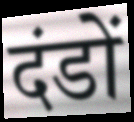
दंडों